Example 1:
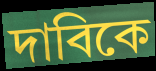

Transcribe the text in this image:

দাবিকে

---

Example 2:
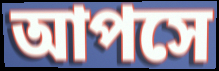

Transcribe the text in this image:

আপসে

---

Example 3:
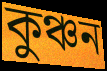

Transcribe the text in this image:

কুঞ্চন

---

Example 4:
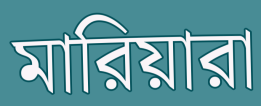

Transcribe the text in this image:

মারিয়ারা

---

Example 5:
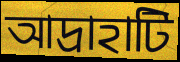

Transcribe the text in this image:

আদ্রাহাটি